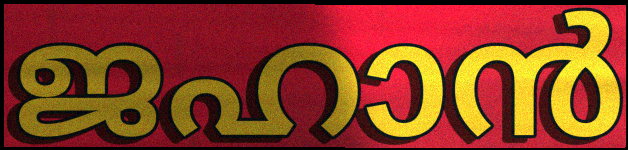
ജഹാൻ